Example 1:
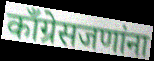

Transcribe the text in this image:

काँग्रेसजणांना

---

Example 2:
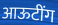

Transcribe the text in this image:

आऊटींग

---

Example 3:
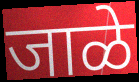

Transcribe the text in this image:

जाळे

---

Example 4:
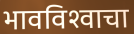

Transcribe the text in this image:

भावविश्वाचा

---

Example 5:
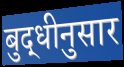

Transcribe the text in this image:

बुद्धीनुसार